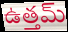
ఉత్తమ్